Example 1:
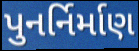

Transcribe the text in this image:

પુનર્નિર્માણ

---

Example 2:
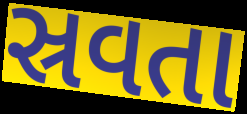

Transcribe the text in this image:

સ્રવતા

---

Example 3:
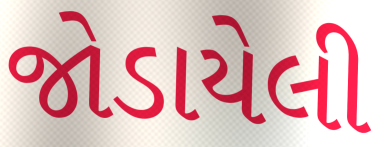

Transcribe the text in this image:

જોડાયેલી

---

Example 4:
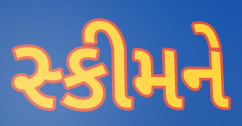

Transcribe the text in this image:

સ્કીમને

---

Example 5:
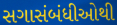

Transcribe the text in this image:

સગાસંબંધીઓથી